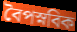
বৈপস্নবিক